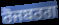
ਰੋਜਬਰਗ